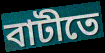
বাটীতে